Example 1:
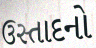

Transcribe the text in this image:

ઉસ્તાદનો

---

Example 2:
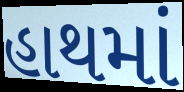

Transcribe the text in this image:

હાથમાં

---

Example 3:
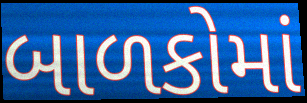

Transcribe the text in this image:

બાળકોમાં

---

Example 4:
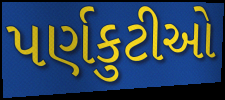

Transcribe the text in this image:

પર્ણકુટીઓ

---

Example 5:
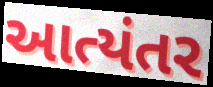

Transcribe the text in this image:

આત્યંતર